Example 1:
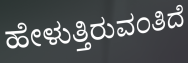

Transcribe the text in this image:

ಹೇಳುತ್ತಿರುವಂತಿದೆ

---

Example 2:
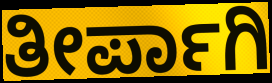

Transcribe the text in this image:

ತೀರ್ಪಾಗಿ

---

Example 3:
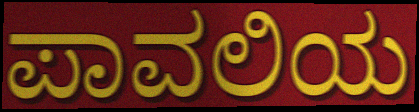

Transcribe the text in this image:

ಪಾವಲಿಯ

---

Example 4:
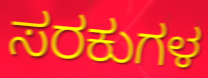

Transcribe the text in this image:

ಸರಕುಗಳ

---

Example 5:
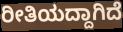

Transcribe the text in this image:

ರೀತಿಯದ್ದಾಗಿದೆ